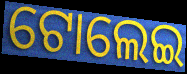
ଟୋଲେଇ